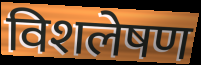
विशलेषण